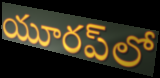
యూరప్‌లో